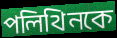
পলিথিনকে